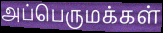
அப்பெருமக்கள்